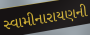
સ્વામીનારાયણની